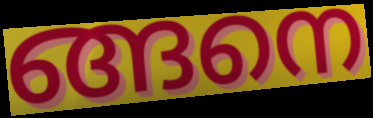
ങ്ങനെ